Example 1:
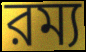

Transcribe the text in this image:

রম্য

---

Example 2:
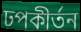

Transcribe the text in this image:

ঢপকীর্তন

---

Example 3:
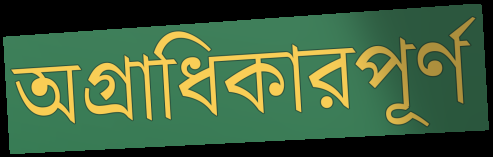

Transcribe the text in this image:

অগ্রাধিকারপূর্ণ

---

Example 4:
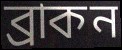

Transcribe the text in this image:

ব্রাকন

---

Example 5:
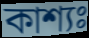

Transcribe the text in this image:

কাশ্যঃ